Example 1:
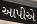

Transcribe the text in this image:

આપીએ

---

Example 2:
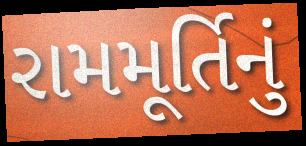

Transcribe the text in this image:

રામમૂર્તિનું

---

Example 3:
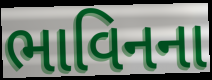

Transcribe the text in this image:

ભાવિનના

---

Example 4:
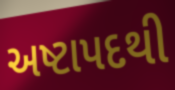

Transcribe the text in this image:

અષ્ટાપદથી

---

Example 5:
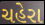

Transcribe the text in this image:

ચહેરા